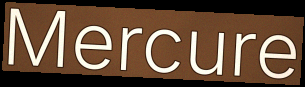
Mercure